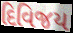
દિવિજય